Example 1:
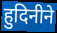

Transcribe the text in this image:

हुदिनीने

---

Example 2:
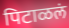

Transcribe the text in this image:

पिटाळलं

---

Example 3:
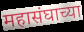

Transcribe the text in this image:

महासंघाच्या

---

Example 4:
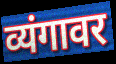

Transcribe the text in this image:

व्यंगावर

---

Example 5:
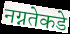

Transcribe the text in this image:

नग्नतेकडे